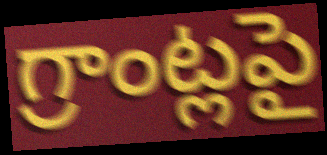
గ్రాంట్లపై